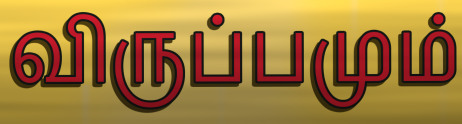
விருப்பமும்